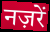
नज़रें